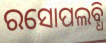
ରସୋପଲବ୍ଧି